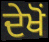
ਦੇਖੋਂ